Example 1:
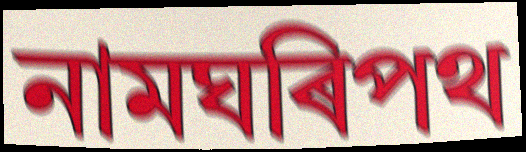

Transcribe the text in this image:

নামঘৰিপথ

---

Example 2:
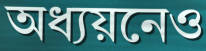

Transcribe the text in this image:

অধ্যয়নেও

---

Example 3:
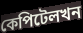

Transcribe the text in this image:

কেপিটেলখন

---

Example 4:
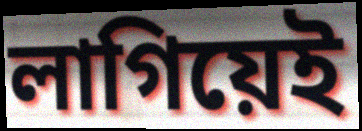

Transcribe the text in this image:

লাগিয়েই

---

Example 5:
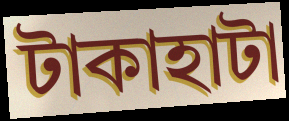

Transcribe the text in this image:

টাকাহাটা